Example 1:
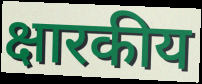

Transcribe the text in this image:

क्षारकीय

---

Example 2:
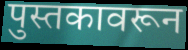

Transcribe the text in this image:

पुस्तकावरून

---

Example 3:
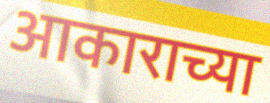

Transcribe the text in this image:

आकाराच्या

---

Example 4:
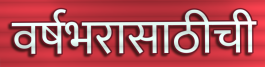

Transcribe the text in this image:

वर्षभरासाठीची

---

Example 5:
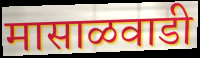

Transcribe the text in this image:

मासाळवाडी